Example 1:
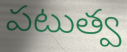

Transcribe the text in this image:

పటుత్వ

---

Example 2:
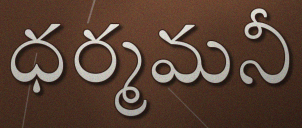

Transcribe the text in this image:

ధర్మమనీ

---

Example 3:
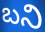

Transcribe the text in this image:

బని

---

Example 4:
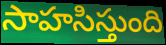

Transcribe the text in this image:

సాహసిస్తుంది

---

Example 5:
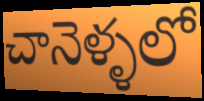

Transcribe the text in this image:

చానెళ్ళలో